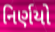
નિર્ણયો